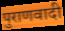
पुराणवादी